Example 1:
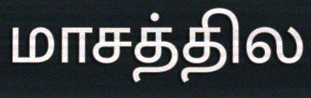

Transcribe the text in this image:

மாசத்தில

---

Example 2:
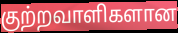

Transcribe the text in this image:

குற்றவாளிகளான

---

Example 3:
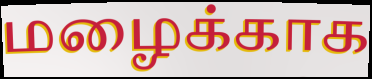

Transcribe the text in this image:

மழைக்காக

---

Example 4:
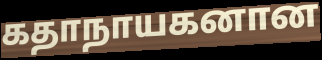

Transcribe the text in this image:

கதாநாயகனான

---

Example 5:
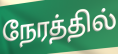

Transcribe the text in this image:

நேரத்தில்